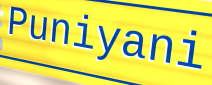
Puniyani